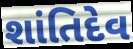
શાંતિદેવ